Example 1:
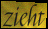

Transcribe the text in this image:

zieht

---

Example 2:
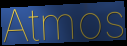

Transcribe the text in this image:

Atmos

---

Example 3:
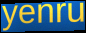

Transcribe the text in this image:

yenru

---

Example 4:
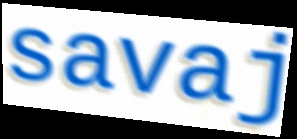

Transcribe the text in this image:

savaj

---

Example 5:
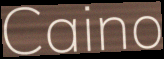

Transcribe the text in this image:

Caino